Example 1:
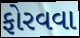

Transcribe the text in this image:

ફોરવવા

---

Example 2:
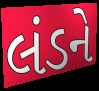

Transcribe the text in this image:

લંડને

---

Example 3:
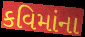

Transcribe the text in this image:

કવિમાંના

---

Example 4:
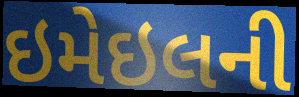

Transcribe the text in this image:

ઇમેઇલની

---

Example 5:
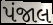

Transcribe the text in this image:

પંજાલ